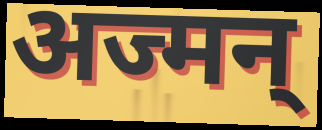
अज्मन्